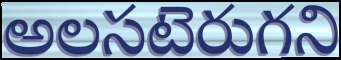
అలసటెరుగని